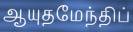
ஆயுதமேந்திப்